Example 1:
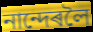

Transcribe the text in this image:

নান্দেৰলৈ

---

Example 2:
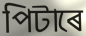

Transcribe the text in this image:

পিটাৰে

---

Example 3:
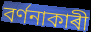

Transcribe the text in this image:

বৰ্ণনাকাৰী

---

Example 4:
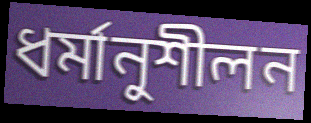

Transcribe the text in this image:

ধৰ্মানুশীলন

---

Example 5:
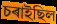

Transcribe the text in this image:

চৰাইছিল